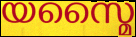
യസ്മൈ